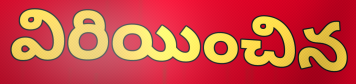
విరియించిన